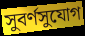
সুবর্ণসুযোগ